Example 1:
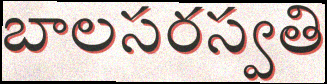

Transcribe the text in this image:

బాలసరస్వతి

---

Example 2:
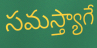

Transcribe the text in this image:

సమస్త్యాగే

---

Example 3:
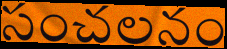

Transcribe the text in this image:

సంచలనం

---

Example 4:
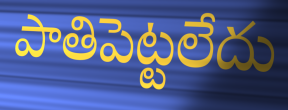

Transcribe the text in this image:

పాతిపెట్టలేదు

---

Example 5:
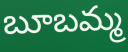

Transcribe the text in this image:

బూబమ్మ